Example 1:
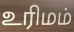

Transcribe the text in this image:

உரிமம்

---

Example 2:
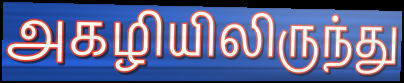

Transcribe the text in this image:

அகழியிலிருந்து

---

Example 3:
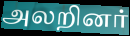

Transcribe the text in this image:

அலறினர்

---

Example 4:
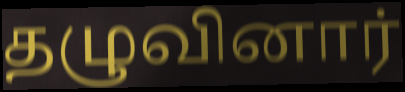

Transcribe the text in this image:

தழுவினார்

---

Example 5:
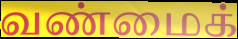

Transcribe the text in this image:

வண்மைக்